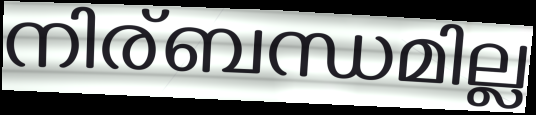
നിര്ബന്ധമില്ല